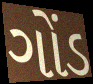
ગોંડ